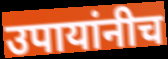
उपायांनीच